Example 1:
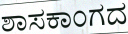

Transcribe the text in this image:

ಶಾಸಕಾಂಗದ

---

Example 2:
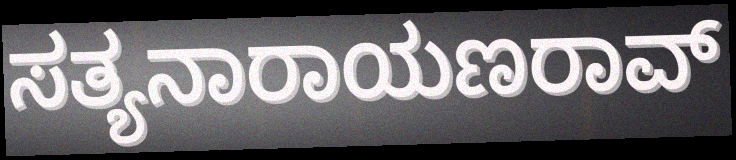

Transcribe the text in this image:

ಸತ್ಯನಾರಾಯಣರಾವ್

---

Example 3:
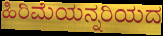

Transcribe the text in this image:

ಹಿರಿಮೆಯನ್ನರಿಯದ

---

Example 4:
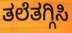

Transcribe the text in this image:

ತಲೆತಗ್ಗಿಸಿ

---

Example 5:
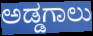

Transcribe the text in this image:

ಅಡ್ಡಗಾಲು